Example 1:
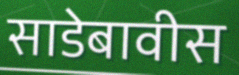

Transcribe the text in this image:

साडेबावीस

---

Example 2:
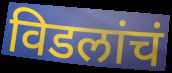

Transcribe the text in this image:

विडलांचं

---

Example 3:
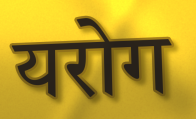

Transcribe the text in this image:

यरोग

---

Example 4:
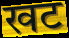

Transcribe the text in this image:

खट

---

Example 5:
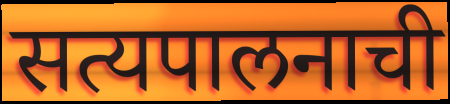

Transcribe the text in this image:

सत्यपालनाची